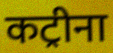
कट्रीना